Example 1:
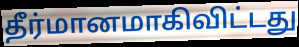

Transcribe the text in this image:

தீர்மானமாகிவிட்டது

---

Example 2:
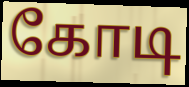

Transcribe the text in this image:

கோடி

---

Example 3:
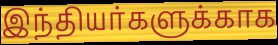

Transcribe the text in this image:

இந்தியர்களுக்காக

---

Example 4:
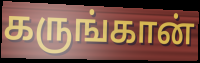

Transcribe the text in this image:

கருங்கான்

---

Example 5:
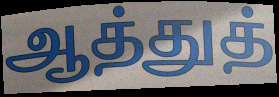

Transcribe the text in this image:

ஆத்துத்